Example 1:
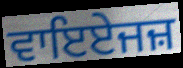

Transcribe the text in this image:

ਵਾਇਏਜਜ਼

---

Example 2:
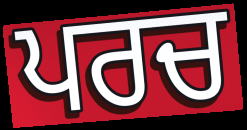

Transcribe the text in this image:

ਪਰਚ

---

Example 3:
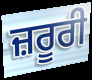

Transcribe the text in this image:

ਜ਼ਰੂਰੀ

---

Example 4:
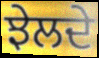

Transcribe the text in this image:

ਝੇਲਦੇ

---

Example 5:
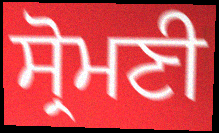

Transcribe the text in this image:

ਸ੍ਰੋਮਣੀ